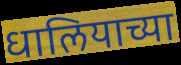
धालियाच्या